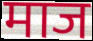
माज